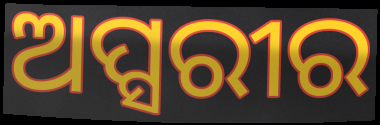
ଅପ୍ସରୀର